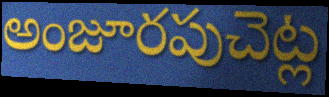
అంజూరపుచెట్ల